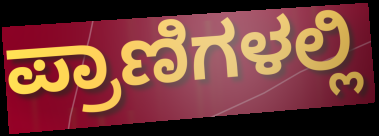
ಪ್ರಾಣಿಗಳಲ್ಲಿ